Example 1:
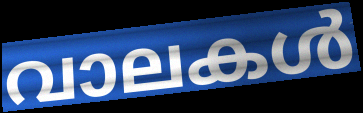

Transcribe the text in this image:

വാലകൾ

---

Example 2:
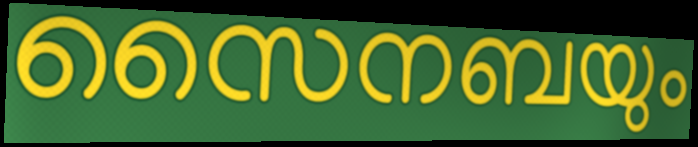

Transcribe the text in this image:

സൈനബയും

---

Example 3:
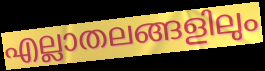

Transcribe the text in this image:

എല്ലാതലങ്ങളിലും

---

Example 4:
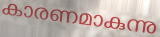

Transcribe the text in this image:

കാരണമാകുന്നു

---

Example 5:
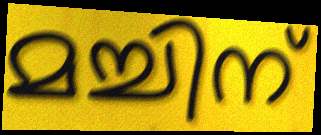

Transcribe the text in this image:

മച്ചിന്